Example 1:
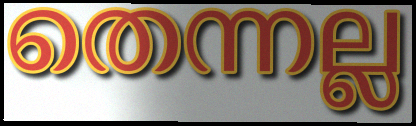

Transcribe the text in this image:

തെന്നല്ല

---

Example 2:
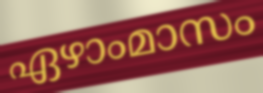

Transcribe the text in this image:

ഏഴാംമാസം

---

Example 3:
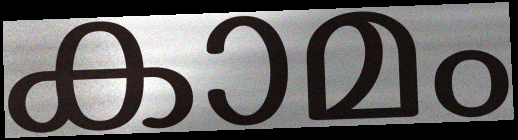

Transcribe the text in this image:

കാമം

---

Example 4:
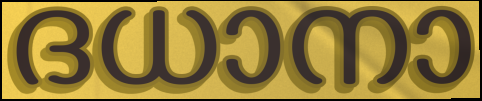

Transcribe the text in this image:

ദധാനാ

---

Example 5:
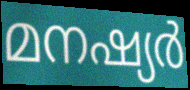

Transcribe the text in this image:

മനഷ്യർ